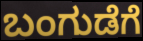
ಬಂಗುಡೆಗೆ